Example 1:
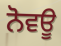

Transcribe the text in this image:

ਨੋਵਊ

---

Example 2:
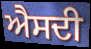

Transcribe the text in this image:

ਐਸਦੀ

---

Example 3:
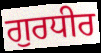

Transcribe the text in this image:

ਗੁਰਧੀਰ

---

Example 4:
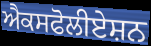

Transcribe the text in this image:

ਐਕਸਫੋਲੀਏਸ਼ਨ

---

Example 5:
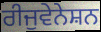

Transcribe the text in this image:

ਰੀਜੁਵੇਨੇਸ਼ਨ